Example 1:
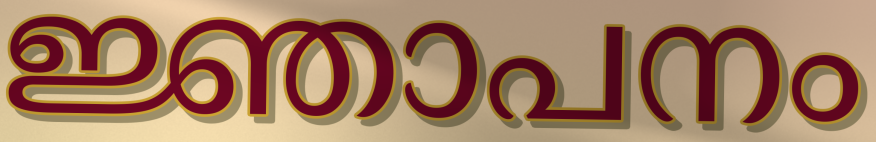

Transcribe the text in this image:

ജ്ഞാപനം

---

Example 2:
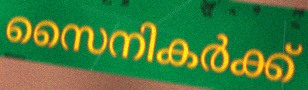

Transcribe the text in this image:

സൈനികർക്ക്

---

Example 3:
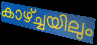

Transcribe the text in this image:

കാഴ്ച്ചയിലും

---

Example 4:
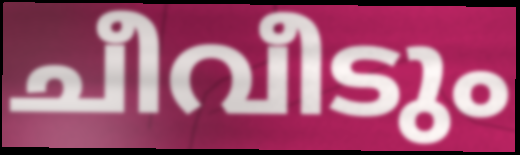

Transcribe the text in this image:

ചീവീടും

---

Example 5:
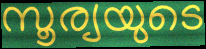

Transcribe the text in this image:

സൂര്യയുടെ